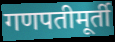
गणपतीमूर्ती